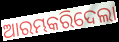
ଆରମ୍ଭକରିଦେଲା